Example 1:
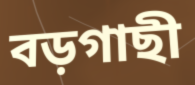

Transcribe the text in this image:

বড়গাছী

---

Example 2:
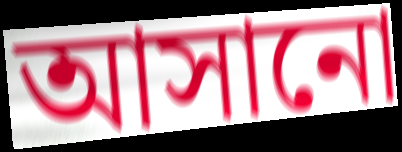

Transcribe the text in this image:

আসানো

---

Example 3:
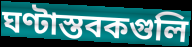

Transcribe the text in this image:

ঘণ্টাস্তবকগুলি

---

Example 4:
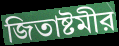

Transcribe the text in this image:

জিতাষ্টমীর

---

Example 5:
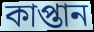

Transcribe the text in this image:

কাপ্তান